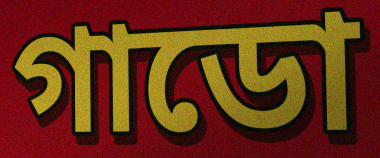
গাডো